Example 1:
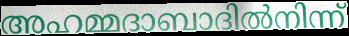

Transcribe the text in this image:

അഹമ്മദാബാദിൽനിന്ന്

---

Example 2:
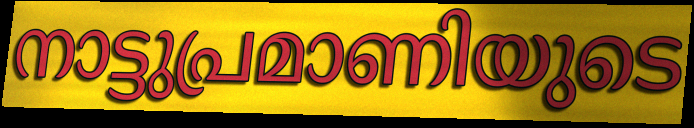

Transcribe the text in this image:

നാട്ടുപ്രമാണിയുടെ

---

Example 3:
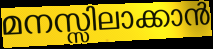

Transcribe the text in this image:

മനസ്സിലാക്കാൻ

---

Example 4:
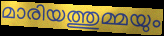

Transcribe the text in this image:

മാരിയത്തുമ്മയും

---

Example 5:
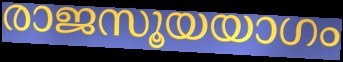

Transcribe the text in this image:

രാജസൂയയാഗം